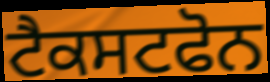
ਟੈਕਸਟਫੋਨ